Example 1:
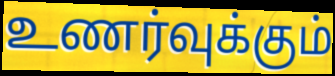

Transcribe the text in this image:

உணர்வுக்கும்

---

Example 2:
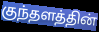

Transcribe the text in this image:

குந்தளத்தின்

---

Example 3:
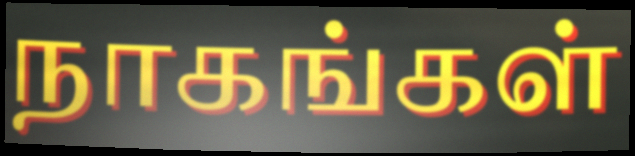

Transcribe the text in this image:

நாகங்கள்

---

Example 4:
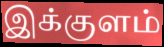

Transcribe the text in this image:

இக்குளம்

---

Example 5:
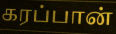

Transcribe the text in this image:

கரப்பான்